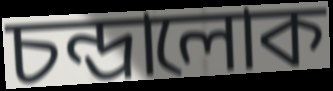
চন্দ্ৰালোক